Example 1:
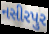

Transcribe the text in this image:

નસીરપુર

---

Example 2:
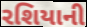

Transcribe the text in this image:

રશિયાની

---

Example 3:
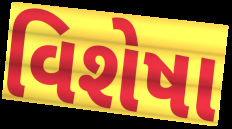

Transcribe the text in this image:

વિશેષા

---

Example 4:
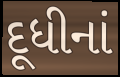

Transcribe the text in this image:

દૂધીનાં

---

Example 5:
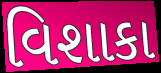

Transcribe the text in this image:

વિશાકા